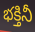
భక్తినీ